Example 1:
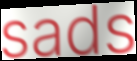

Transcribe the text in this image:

sads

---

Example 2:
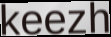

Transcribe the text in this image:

keezh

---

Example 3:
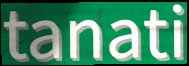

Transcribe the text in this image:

tanati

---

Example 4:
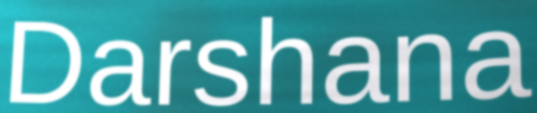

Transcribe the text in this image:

Darshana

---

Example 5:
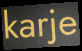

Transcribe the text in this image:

karje